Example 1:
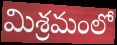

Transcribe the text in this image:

మిశ్రమంలో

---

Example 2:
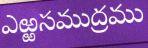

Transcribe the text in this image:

ఎఱ్ఱసముద్రము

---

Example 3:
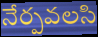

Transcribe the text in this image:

నేర్పవలసి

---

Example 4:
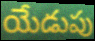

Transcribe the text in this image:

యేడుపు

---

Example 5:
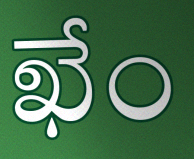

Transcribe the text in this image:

ఖేం